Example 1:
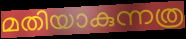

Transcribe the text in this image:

മതിയാകുന്നത്ര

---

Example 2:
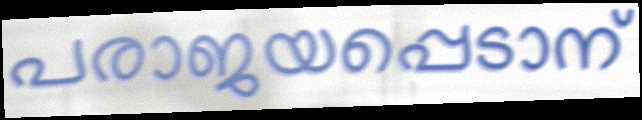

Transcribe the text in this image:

പരാജയപ്പെടാന്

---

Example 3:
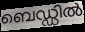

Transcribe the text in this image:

ബെഡ്ഡിൽ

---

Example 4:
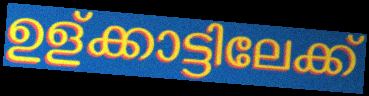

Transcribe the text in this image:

ഉള്ക്കാട്ടിലേക്ക്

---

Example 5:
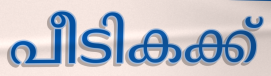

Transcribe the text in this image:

പീടികക്ക്